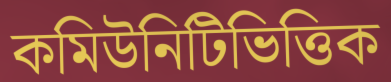
কমিউনিটিভিত্তিক